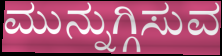
ಮುನ್ನುಗ್ಗಿಸುವ